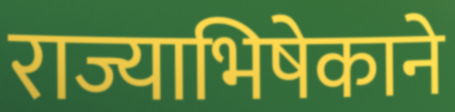
राज्याभिषेकाने